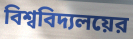
বিশ্ববিদ্যলয়ের